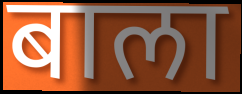
बाला